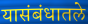
यासंबंधातले